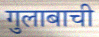
गुलाबाची